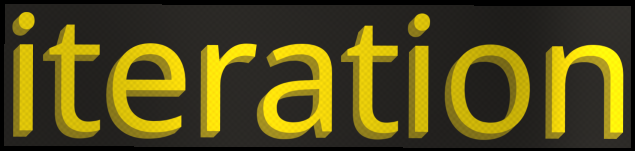
iteration